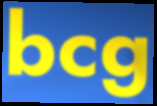
bcg